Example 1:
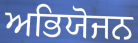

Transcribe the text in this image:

ਅਭਿਯੋਜਨ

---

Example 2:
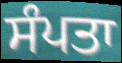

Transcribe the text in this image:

ਸੰਪਤਾ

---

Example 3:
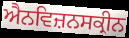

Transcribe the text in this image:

ਐਨਵਿਜ਼ਨਸਕ੍ਰੀਨ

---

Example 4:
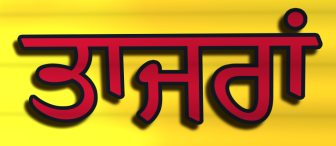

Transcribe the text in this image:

ਤਾਜਰਾਂ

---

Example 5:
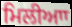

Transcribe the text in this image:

ਮਿਲੀਆਾ